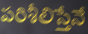
పరిశీలిస్తేనే